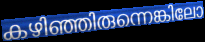
കഴിഞ്ഞിരുന്നെങ്കിലോ